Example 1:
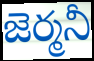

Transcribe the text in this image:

జెర్మనీ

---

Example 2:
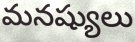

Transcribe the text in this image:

మనష్యులు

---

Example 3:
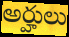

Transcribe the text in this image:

అర్హులు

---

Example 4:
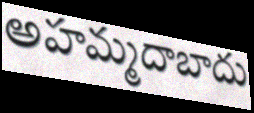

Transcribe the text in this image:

అహమ్మదాబాదు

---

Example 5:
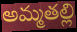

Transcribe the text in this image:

అమ్మతల్లి